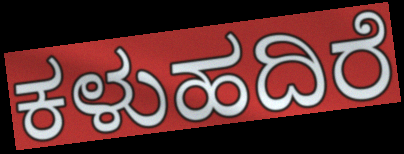
ಕಳುಹದಿರೆ